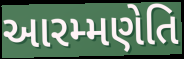
આરમ્મણેતિ